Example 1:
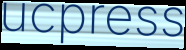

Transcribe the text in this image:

ucpress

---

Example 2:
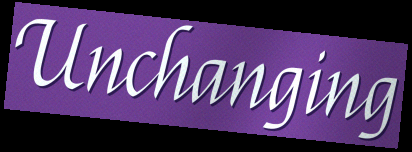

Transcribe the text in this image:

Unchanging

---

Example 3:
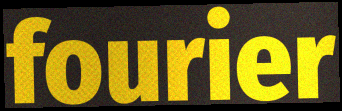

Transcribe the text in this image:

fourier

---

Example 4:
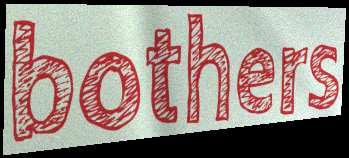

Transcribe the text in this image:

bothers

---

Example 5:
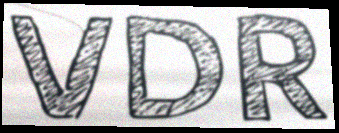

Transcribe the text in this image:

VDR